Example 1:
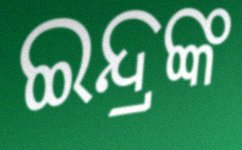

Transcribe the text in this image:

ଇନ୍ଦ୍ରଙ୍କ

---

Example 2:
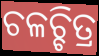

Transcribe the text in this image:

ଚଳଚ୍ଚିତ୍ର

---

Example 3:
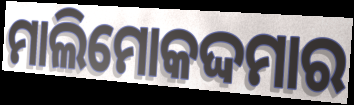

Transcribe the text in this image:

ମାଲିମୋକଦ୍ଦମାର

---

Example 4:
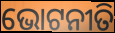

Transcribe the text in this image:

ଭୋଟନୀତି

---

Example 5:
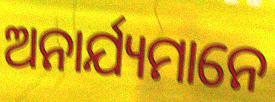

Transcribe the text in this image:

ଅନାର୍ଯ୍ୟମାନେ